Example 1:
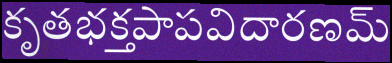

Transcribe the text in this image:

కృతభక్తపాపవిదారణమ్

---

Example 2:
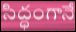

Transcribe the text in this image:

సిద్ధంగానే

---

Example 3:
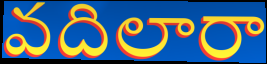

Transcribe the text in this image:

వదిలారా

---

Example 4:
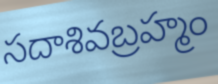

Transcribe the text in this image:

సదాశివబ్రహ్మం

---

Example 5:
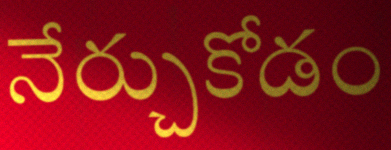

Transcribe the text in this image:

నేర్చుకోడం